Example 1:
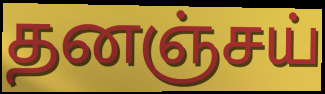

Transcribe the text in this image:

தனஞ்சய்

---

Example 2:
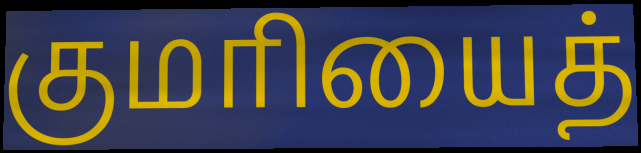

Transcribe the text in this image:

குமரியைத்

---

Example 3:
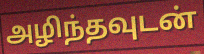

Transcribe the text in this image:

அழிந்தவுடன்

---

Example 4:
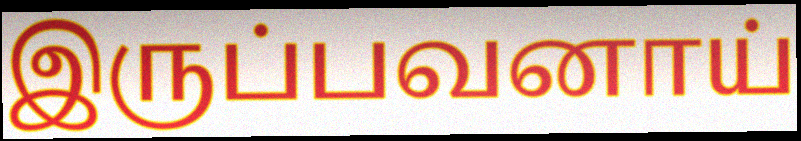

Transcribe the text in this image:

இருப்பவனாய்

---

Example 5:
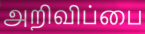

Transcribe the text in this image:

அறிவிப்பை